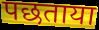
पछताया